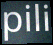
pili